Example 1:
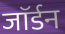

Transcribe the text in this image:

जॉर्डन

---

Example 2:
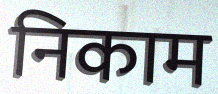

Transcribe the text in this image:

निकाम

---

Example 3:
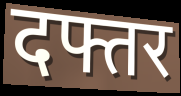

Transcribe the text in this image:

दफ्तर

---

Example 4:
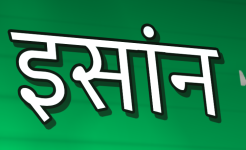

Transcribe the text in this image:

इसांन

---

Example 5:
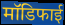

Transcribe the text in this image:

मॉडिफाई